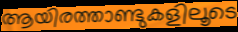
ആയിരത്താണ്ടുകളിലൂടെ